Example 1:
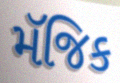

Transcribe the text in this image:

મૅજિક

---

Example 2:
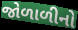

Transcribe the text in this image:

જોળાળીનો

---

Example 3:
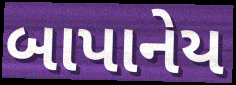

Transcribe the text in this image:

બાપાનેય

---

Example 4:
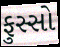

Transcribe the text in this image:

ફુસ્સો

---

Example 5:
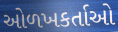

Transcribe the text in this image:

ઓળખકર્તાઓ